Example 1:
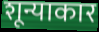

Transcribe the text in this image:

शून्याकार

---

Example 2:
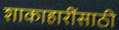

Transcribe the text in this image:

शाकाहारींसाठी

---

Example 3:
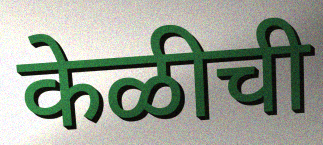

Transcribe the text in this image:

केळीची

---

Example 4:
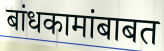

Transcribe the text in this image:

बांधकामांबाबत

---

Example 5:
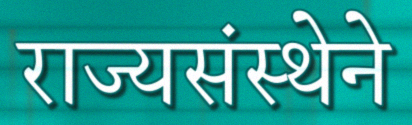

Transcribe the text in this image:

राज्यसंस्थेने